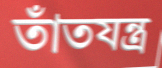
তাঁতযন্ত্র